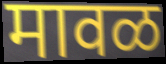
मावळ